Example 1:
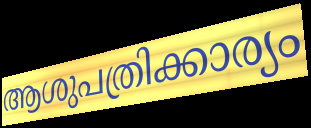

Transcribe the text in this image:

ആശുപത്രിക്കാര്യം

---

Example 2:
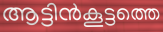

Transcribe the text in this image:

ആട്ടിൻകൂട്ടത്തെ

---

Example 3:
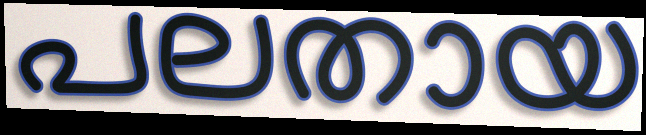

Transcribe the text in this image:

പലതായ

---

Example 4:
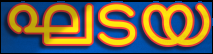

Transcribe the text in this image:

ഘടയ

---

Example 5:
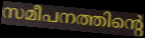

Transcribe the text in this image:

സമീപനത്തിന്റെ